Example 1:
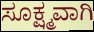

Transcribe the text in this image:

ಸೂಕ್ಷ್ಮವಾಗಿ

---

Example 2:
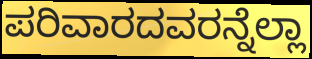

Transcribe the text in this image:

ಪರಿವಾರದವರನ್ನೆಲ್ಲಾ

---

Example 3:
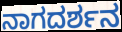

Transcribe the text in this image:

ನಾಗದರ್ಶನ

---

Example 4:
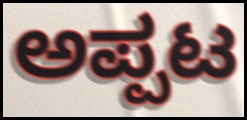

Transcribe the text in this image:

ಅಪ್ಪಟ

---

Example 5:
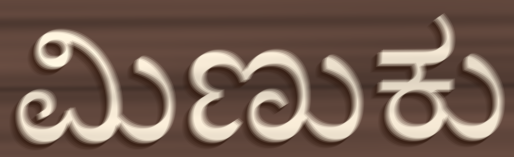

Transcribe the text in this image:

ಮಿಣುಕು